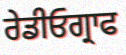
ਰੇਡੀਓਗ੍ਰਾਫ